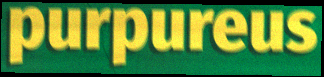
purpureus